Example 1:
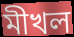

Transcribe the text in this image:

মীখল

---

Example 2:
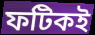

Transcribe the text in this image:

ফটিকই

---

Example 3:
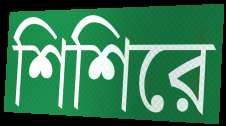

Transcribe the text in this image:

শিশিরে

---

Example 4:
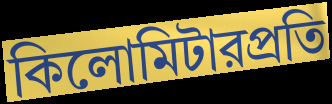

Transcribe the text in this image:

কিলোমিটারপ্রতি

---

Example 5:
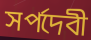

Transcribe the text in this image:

সর্পদেবী